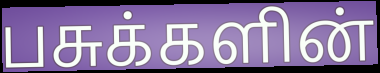
பசுக்களின்